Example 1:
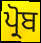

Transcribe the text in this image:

ਪ੍ਰੋਬ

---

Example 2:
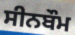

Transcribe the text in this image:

ਸੀਨਬੌਮ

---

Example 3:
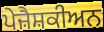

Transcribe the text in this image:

ਪੇਜ਼ੈਸ਼ਕੀਅਨ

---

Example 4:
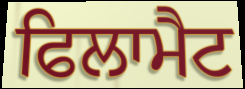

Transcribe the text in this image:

ਫਿਲਾਮੈਟ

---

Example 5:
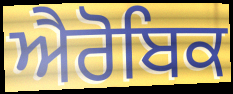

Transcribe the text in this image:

ਐਰੋਬਿਕ